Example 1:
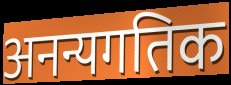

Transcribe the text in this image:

अनन्यगतिक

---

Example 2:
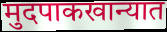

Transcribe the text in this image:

मुदपाकखान्यात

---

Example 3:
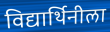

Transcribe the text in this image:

विद्यार्थिनीला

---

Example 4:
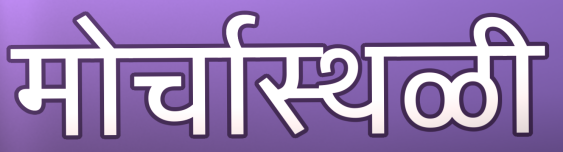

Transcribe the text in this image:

मोर्चास्थळी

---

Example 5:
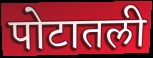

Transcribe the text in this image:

पोटातली